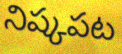
నిష్కపట